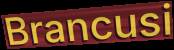
Brancusi